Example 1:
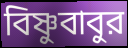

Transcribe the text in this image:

বিষ্ণুবাবুর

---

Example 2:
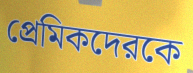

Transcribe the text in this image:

প্রেমিকদেরকে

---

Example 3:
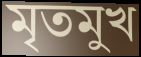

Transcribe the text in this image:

মৃতমুখ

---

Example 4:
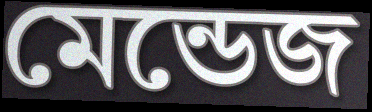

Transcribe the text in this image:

মেন্ডেজ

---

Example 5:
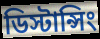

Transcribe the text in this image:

ডিস্টান্সিং